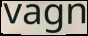
vagn